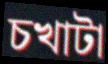
চখাটা